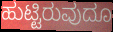
ಹುಟ್ಟಿರುವುದೂ